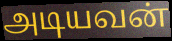
அடியவன்